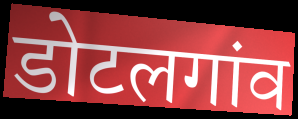
डोटलगांव